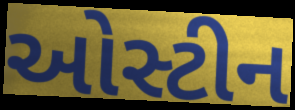
ઓસ્ટીન